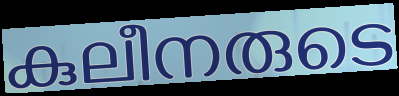
കുലീനരുടെ